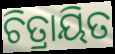
ଚିତ୍ରାୟିତ